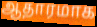
ஆதாரமாக